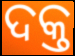
ଦକ୍ତ